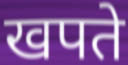
खपते